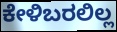
ಕೇಳಿಬರಲಿಲ್ಲ